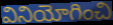
వినియోగించి